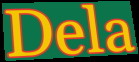
Dela